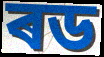
ৰড